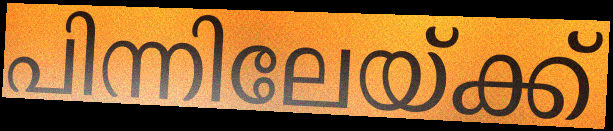
പിന്നിലേയ്ക്ക്